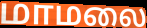
மாமலை